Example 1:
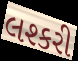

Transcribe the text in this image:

લશ્કરી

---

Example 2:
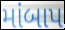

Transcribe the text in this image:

માંબાપ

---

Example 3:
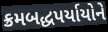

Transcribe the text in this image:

ક્રમબદ્ધપર્યાયોને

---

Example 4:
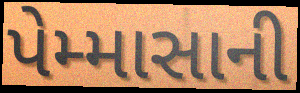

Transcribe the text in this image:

પેમ્માસાની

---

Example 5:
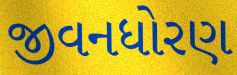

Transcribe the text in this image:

જીવનધોરણ